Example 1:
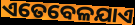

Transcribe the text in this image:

ଏତେବେଳଯାଏ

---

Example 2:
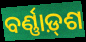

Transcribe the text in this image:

ବର୍ଣ୍ଣାଡ଼୍‌ଶ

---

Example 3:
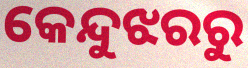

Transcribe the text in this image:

କେନ୍ଦୁଝରରୁ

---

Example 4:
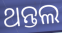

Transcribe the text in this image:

ଥନ୍ତଲ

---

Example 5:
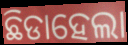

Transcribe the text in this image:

ଛିଡାହେଲା